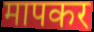
मापकर